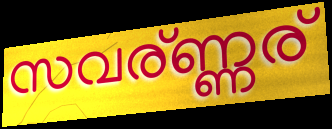
സവര്ണ്ണര്